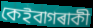
কেইবাগৰাকী